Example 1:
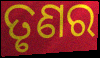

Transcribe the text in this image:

ତୃଣର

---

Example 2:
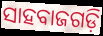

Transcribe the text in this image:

ସାହବାଜଗଡ଼ି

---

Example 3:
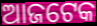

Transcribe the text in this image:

ଆଜଟେକ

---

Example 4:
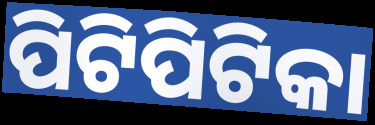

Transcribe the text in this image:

ପିଟିପିଟିକା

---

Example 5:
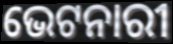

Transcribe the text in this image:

ଭେଟନାରୀ